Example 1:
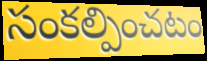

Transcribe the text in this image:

సంకల్పించటం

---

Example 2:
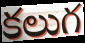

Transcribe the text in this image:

కలుగ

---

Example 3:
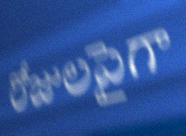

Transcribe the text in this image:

రోజులపైగా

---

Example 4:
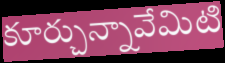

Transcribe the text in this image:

కూర్చున్నావేమిటి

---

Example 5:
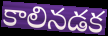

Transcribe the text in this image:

కాలినడక